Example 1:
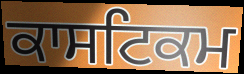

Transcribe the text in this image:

ਕਾਸਟਿਕਮ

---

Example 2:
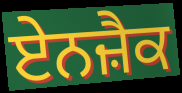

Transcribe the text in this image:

ਏਨਜ਼ੈਕ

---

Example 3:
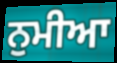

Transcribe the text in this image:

ਨੁਮੀਆ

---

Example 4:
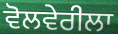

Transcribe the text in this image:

ਵੋਲਵੇਰੀਲਾ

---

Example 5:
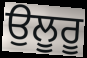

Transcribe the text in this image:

ਉਲੂਰੂ